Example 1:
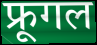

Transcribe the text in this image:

फ्रूगल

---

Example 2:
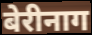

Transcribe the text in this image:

बेरीनाग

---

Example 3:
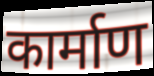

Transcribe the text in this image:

कार्माण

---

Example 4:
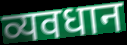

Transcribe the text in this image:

व्यवधान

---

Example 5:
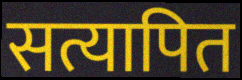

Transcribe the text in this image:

सत्यापित